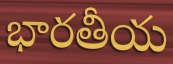
భారతీయ